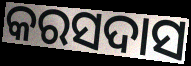
କରସଦାସ